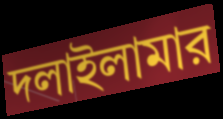
দলাইলামার